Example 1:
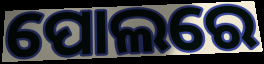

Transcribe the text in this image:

ପୋଲରେ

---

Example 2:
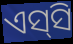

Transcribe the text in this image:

ଏସ୍‌ସି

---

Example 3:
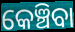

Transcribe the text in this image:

କେଞ୍ଚିବା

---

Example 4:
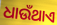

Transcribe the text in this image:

ଧାଉଁଥାଏ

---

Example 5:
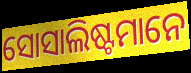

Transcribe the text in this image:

ସୋସାଲିଷ୍ଟମାନେ